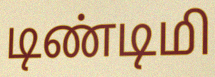
டிண்டிமி